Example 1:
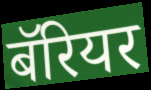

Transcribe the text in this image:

बॅरियर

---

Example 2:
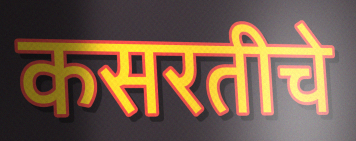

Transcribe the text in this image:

कसरतीचे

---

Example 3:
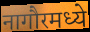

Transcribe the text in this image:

नागौरमध्ये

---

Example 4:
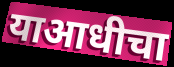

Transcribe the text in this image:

याआधीचा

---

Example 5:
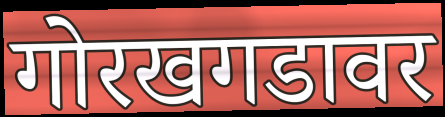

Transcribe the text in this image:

गोरखगडावर